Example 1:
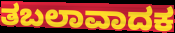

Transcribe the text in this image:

ತಬಲಾವಾದಕ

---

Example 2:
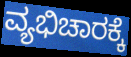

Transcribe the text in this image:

ವ್ಯಭಿಚಾರಕ್ಕೆ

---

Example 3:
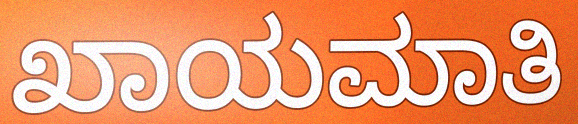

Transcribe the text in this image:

ಖಾಯಮಾತಿ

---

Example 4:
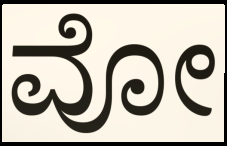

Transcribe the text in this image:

ವೋ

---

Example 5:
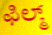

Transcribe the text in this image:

ಫಿಲ್ಮ್